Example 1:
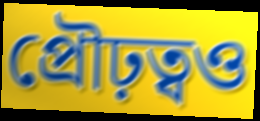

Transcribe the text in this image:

প্রৌঢ়ত্বও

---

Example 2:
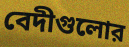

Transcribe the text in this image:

বেদীগুলোর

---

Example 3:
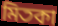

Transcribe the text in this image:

মিতকা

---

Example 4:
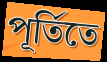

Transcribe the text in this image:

পূর্তিতে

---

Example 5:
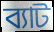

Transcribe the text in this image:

ব্যাট